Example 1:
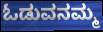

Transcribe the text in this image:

ಓಡುವನಮ್ಮ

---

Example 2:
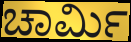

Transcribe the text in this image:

ಚಾರ್ಮಿ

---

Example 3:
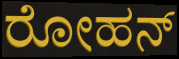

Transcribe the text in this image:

ರೋಹನ್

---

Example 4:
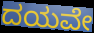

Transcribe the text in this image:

ದಯವೇ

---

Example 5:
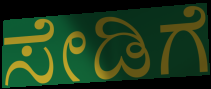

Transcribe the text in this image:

ಸೇಡಿಗೆ